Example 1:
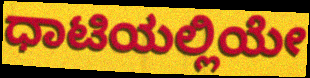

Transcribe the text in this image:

ಧಾಟಿಯಲ್ಲಿಯೇ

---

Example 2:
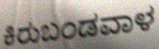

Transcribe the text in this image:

ಕಿರುಬಂಡವಾಳ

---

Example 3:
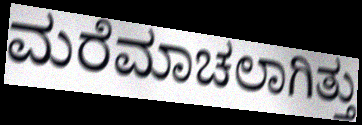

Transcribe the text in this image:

ಮರೆಮಾಚಲಾಗಿತ್ತು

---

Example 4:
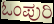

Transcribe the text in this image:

ಓಂಪುರಿ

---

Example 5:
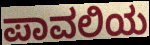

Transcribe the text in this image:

ಪಾವಲಿಯ